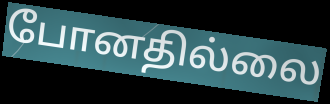
போனதில்லை